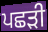
ਪਛੜੀ